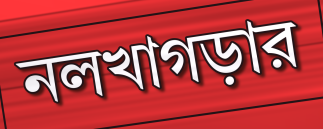
নলখাগড়ার